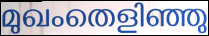
മുഖംതെളിഞ്ഞു